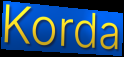
Korda